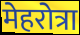
मेहरोत्रा